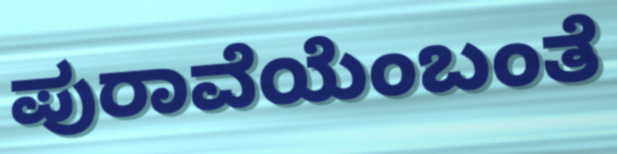
ಪುರಾವೆಯೆಂಬಂತೆ